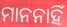
ମାନନାହିଁ